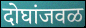
दोघांजवळ